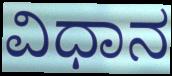
ವಿಧಾನ